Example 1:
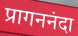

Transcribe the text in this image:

प्रागननंदा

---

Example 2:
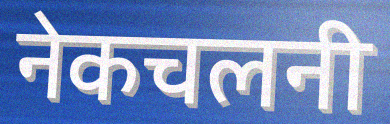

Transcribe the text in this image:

नेकचलनी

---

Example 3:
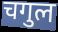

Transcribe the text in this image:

चगुल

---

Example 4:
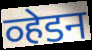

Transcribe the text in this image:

व्हेडन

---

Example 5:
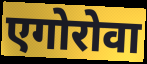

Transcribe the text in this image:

एगोरोवा